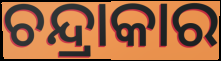
ଚନ୍ଦ୍ରାକାର